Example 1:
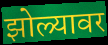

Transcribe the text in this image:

झोल्यावर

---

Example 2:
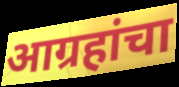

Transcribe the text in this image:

आग्रहांचा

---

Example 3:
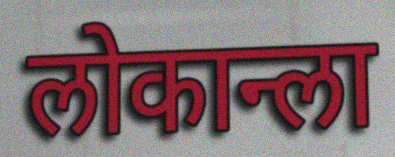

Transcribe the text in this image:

लोकान्ला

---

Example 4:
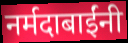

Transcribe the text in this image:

नर्मदाबाईंनी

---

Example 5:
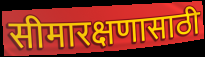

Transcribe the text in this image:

सीमारक्षणासाठी